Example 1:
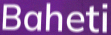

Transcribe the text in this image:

Baheti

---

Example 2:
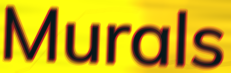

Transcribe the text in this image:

Murals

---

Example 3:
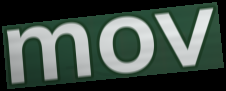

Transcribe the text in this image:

mov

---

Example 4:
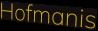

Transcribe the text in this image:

Hofmanis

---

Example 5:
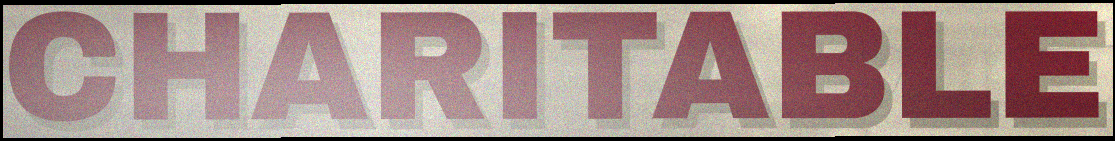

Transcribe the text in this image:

CHARITABLE